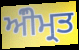
ਅੰੀਮ੍ਰਤ